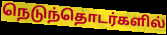
நெடுந்தொடர்களில்